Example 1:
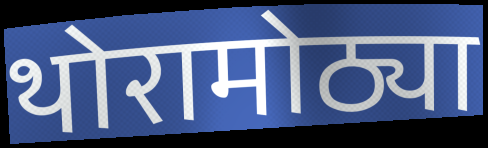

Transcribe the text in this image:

थोरामोठ्या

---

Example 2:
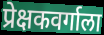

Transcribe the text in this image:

प्रेक्षकवर्गाला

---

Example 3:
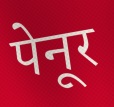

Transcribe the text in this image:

पेनूर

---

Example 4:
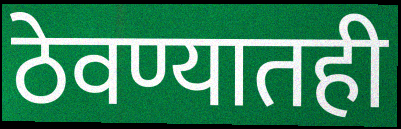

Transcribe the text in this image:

ठेवण्यातही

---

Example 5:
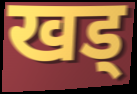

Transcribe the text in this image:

खड्